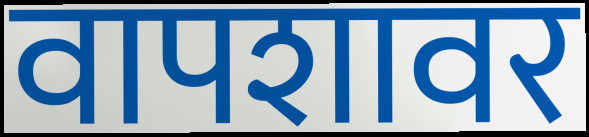
वापशावर